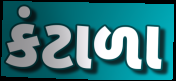
કંટાળા